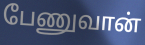
பேணுவான்